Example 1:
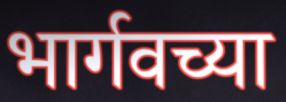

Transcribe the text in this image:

भार्गवच्या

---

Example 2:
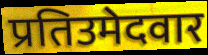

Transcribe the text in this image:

प्रतिउमेदवार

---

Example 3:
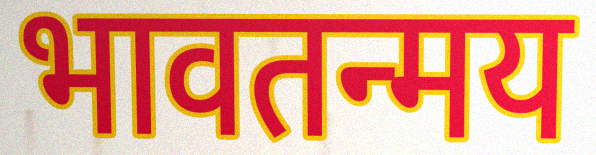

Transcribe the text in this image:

भावतन्मय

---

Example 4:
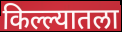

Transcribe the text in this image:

किल्ल्यातला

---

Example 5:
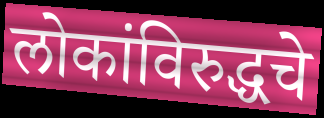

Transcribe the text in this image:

लोकांविरुद्धचे